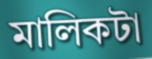
মালিকটা